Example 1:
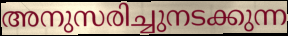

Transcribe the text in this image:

അനുസരിച്ചുനടക്കുന്ന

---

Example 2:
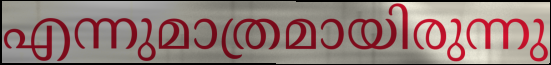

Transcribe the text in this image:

എന്നുമാത്രമായിരുന്നു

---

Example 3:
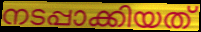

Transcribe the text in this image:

നടപ്പാക്കിയത്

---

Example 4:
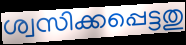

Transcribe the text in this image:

ശ്വസിക്കപ്പെട്ടതു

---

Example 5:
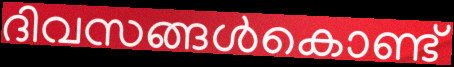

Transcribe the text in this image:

ദിവസങ്ങൾകൊണ്ട്